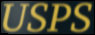
USPS